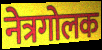
नेत्रगोलक